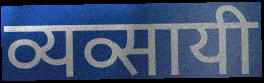
व्यव्सायी